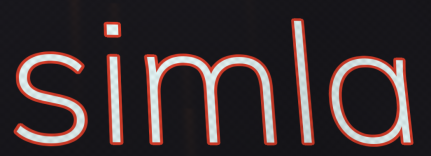
simla